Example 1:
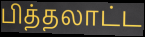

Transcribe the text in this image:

பித்தலாட்ட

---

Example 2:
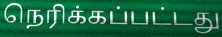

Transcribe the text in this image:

நெரிக்கப்பட்டது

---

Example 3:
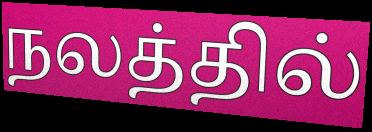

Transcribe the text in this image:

நலத்தில்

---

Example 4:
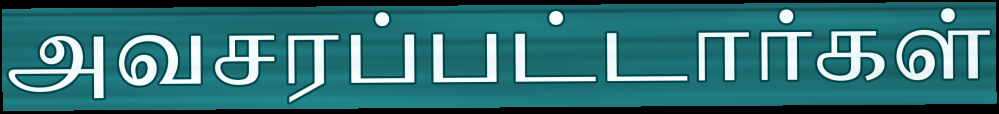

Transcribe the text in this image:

அவசரப்பட்டார்கள்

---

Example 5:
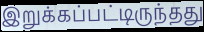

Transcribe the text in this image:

இறுக்கப்பட்டிருந்தது